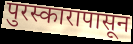
पुरस्कारापासून